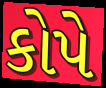
કોપે